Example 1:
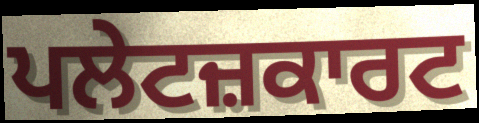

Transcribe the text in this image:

ਪਲੇਟਜ਼ਕਾਰਟ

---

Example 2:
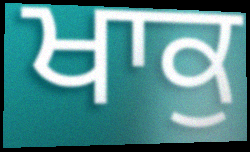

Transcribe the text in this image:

ਖਾਕੁ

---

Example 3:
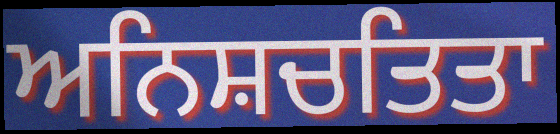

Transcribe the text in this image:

ਅਨਿਸ਼ਚਤਿਤਾ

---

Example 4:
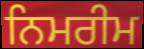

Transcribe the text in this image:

ਨਿਮਰੀਮ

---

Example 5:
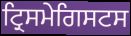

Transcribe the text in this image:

ਟ੍ਰਿਸਮੇਗਿਸਟਸ